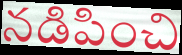
నడిపించి